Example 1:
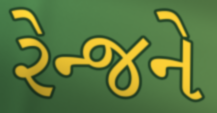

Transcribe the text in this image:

રેન્જને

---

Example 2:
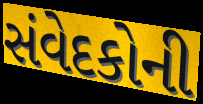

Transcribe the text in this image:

સંવેદકોની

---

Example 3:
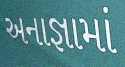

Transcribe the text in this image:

અનાજ્ઞામાં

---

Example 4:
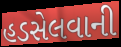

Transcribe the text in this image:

હડસેલવાની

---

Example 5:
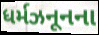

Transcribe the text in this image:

ધર્મઝનૂનના